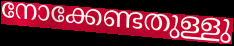
നോക്കേണ്ടതുള്ളു